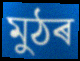
মুঠৰ